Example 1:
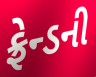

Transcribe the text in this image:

ફ્રેન્ડની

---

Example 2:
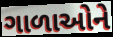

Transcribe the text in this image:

ગાળાઓને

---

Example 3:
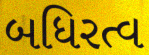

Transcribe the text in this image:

બધિરત્વ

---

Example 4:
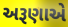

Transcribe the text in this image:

અરૂણાએ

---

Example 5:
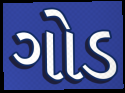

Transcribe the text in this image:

ગોડ